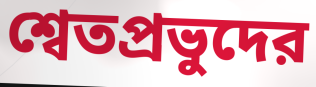
শ্বেতপ্রভুদের